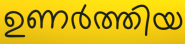
ഉണർത്തിയ